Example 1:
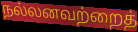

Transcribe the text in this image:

நல்லனவற்றைத்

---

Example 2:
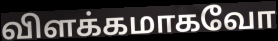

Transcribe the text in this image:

விளக்கமாகவோ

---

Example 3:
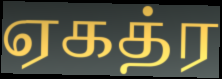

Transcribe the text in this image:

ஏகத்ர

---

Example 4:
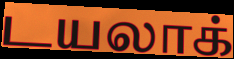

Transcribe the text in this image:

டயலாக்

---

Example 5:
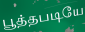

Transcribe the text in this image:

பூத்தபடியே